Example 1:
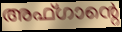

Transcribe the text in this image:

അഫ്ഗാന്റെ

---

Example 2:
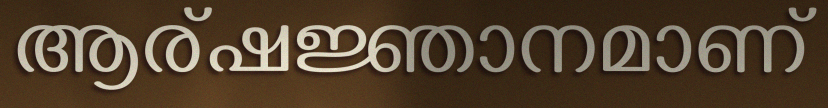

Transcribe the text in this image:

ആര്ഷജ്ഞാനമാണ്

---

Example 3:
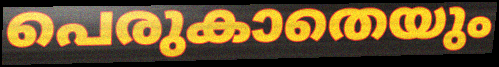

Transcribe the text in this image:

പെരുകാതെയും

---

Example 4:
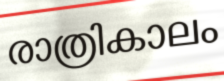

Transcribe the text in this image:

രാത്രികാലം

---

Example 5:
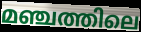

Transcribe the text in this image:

മഞ്ചത്തിലെ